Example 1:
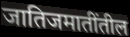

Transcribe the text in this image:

जातिजमातींतील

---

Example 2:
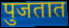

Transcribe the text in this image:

पुजतात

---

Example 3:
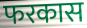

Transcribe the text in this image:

फरकास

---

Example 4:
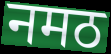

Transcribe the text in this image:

नमठ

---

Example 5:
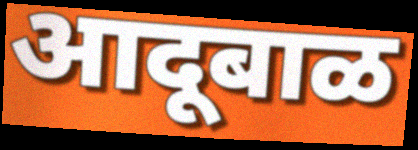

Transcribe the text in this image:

आदूबाळ